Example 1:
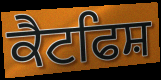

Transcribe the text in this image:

ਕੈਟਫਿਸ਼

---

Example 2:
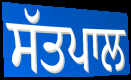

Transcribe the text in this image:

ਸੱਤਪਾਲ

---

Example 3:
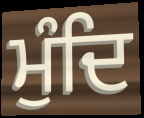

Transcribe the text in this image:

ਮੁੰਦਿ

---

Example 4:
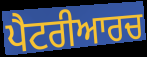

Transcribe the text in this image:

ਪੈਟਰੀਆਰਚ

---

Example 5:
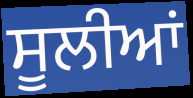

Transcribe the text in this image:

ਸੂਲੀਆਂ